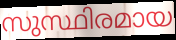
സുസ്ഥിരമായ